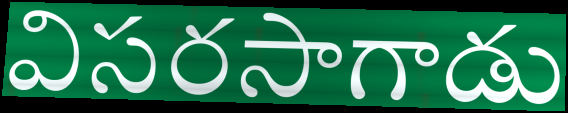
విసరసాగాడు